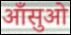
आँसुओ